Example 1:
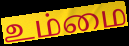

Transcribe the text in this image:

உம்மை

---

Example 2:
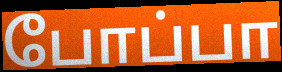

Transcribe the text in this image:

போப்பா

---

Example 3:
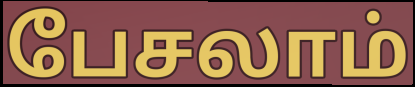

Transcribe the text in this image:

பேசலாம்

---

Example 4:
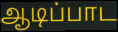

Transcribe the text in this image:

ஆடிப்பாட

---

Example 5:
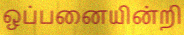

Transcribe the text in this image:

ஒப்பனையின்றி